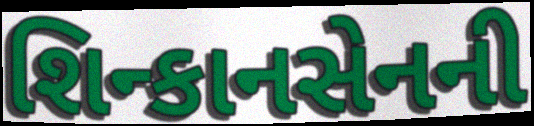
શિન્કાનસેનની